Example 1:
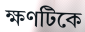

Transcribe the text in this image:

ক্ষণটিকে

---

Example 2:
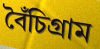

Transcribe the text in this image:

বৈঁচিগ্রাম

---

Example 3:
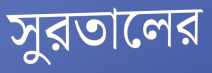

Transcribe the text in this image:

সুরতালের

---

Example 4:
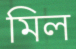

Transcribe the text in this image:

মিল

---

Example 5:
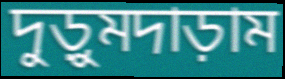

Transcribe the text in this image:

দুড়ুমদাড়াম